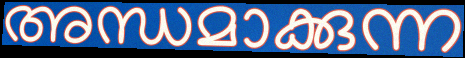
അന്ധമാക്കുന്ന